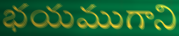
భయముగాని